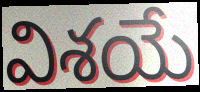
విశయే